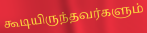
கூடியிருந்தவர்களும்